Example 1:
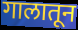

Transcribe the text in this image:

गालातून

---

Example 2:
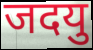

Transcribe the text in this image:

जदयु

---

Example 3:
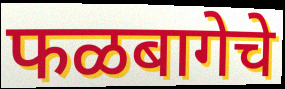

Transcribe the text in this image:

फळबागेचे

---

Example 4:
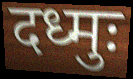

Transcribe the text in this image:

दध्मुः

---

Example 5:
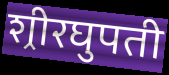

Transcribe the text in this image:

श्रीरघुपती